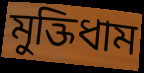
মুক্তিধাম